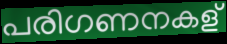
പരിഗണനകള്